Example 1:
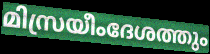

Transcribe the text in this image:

മിസ്രയീംദേശത്തും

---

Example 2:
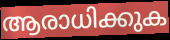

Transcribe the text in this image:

ആരാധിക്കുക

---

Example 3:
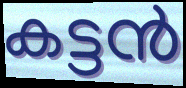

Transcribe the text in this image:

കട്ടൻ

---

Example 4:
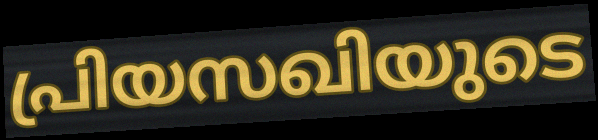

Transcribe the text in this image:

പ്രിയസഖിയുടെ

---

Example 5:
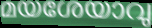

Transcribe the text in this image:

മയശേയാവു